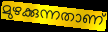
മുഴക്കുന്നതാണ്